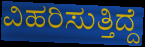
ವಿಹರಿಸುತ್ತಿದ್ದೆ